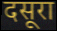
दसूरा